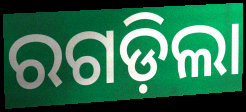
ରଗଡ଼ିଲା